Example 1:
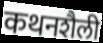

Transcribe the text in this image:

कथनशैली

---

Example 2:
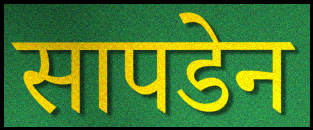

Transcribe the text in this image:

सापडेन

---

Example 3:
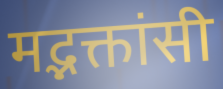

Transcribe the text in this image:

मद्भक्तांसी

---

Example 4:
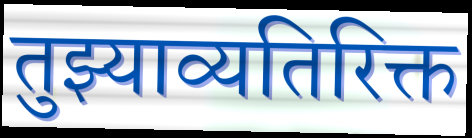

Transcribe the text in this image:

तुझ्याव्यतिरिक्त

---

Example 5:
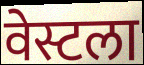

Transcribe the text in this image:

वेस्टला